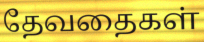
தேவதைகள்